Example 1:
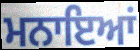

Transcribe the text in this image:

ਮਨਾਇਆਂ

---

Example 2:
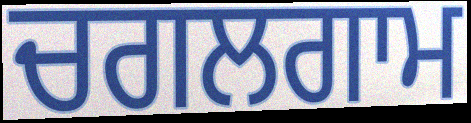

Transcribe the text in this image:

ਚਗਲਗਾਮ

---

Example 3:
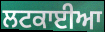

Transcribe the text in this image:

ਲਟਕਾਈਆ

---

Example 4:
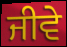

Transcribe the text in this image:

ਜੀਵੇ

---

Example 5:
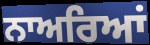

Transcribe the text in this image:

ਨਾਅਰਿਆਂ